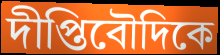
দীপ্তিবৌদিকে